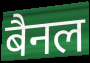
बैनल